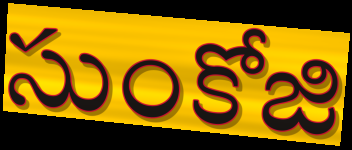
సుంకోజి